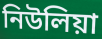
নিউলিয়া